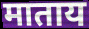
माताय